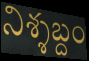
నిశ్శబ్దం